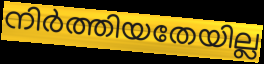
നിർത്തിയതേയില്ല